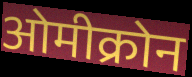
ओमीक्रोन